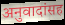
अनुवादांसह